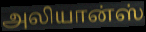
அலியான்ஸ்